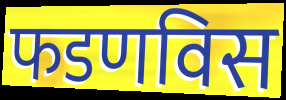
फडणविस